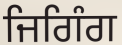
ਜਿਗਿੰਗ